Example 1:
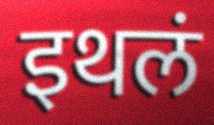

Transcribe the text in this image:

इथलं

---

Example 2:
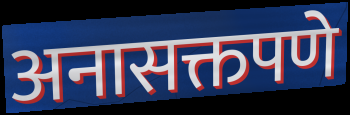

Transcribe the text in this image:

अनासक्तपणे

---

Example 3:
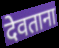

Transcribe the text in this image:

देवताना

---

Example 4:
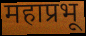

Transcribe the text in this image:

महाप्रभू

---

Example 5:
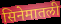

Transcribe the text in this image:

सिनेमातली